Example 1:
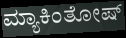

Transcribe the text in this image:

ಮ್ಯಾಕಿಂತೋಷ್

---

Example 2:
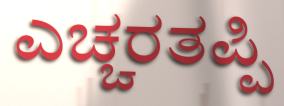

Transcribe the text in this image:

ಎಚ್ಚರತಪ್ಪಿ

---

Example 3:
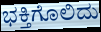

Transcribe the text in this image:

ಭಕ್ತಿಗೊಲಿದು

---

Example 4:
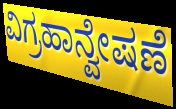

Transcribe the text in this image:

ವಿಗ್ರಹಾನ್ವೇಷಣೆ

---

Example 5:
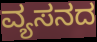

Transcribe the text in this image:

ವ್ಯಸನದ